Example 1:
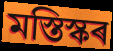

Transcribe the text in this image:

মস্তিস্কৰ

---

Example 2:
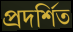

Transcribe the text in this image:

প্ৰদৰ্শিত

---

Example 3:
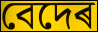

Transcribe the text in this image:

বেদেৰ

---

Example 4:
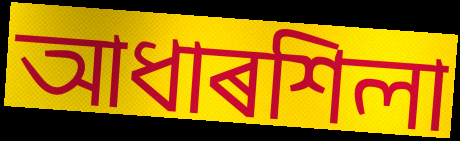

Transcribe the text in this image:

আধাৰশিলা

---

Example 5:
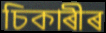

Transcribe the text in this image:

চিকাৰীৰ